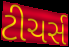
ટીચર્સ